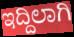
ಇದ್ದಿಲಾಗಿ